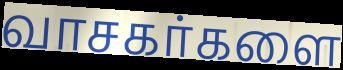
வாசகர்களை